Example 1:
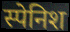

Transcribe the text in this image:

स्पेनिश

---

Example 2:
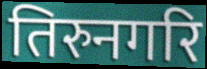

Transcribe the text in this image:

तिरुनगरि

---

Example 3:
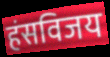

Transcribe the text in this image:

हंसविजय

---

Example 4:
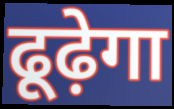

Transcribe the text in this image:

ढूढ़ेगा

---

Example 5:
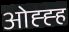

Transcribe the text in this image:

ओह्ह्ह